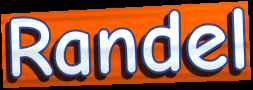
Randel